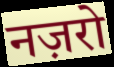
नज़रो